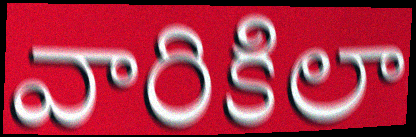
వారికిలా